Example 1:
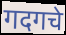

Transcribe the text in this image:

गदगचे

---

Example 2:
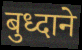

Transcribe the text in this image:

बुध्दाने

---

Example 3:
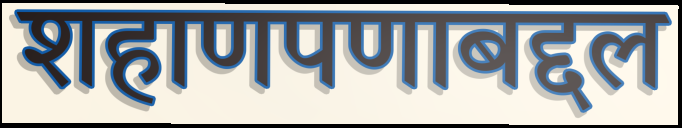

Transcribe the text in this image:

शहाणपणाबद्दल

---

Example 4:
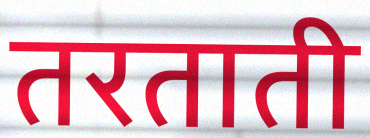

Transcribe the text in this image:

तरताती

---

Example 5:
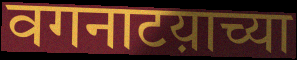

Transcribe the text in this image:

वगनाटय़ाच्या